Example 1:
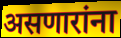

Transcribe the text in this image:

असणारांना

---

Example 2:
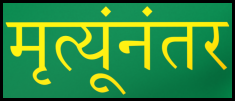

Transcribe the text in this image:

मृत्यूंनंतर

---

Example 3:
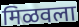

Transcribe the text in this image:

मिळवला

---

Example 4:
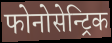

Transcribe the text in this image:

फोनोसेन्ट्रिक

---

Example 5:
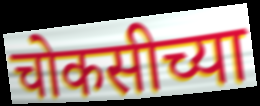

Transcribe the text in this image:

चोकसीच्या